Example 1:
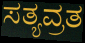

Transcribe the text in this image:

ಸತ್ಯವ್ರತ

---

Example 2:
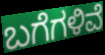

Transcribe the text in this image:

ಬಗೆಗಳಿವೆ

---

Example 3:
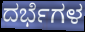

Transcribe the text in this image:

ದರ್ಭೆಗಳ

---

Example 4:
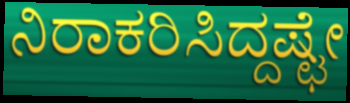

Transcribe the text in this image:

ನಿರಾಕರಿಸಿದ್ದಷ್ಟೇ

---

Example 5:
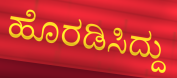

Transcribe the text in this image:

ಹೊರಡಿಸಿದ್ದು